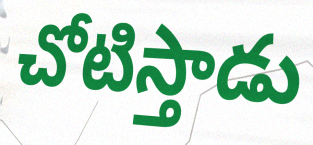
చోటిస్తాడు